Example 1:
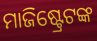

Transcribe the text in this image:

ମାଜିଷ୍ଟ୍ରେଟଙ୍କ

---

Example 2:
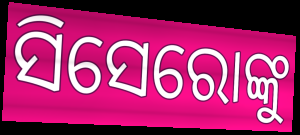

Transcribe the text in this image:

ସିସେରୋଙ୍କୁ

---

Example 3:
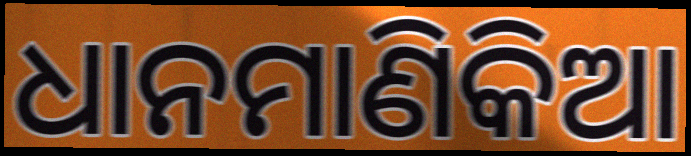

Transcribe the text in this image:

ଧାନମାଣିକିଆ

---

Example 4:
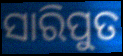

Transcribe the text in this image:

ସାରିପୁତ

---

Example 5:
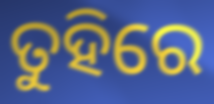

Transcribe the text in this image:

ତୁହିରେ